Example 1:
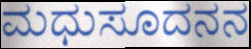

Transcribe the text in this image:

ಮಧುಸೂದನನ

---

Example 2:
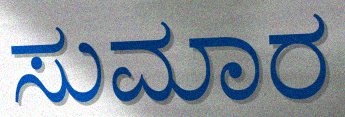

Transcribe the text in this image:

ಸುಮಾರ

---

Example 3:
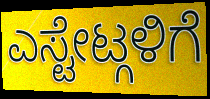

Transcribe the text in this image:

ಎಸ್ಟೇಟ್ಗಳಿಗೆ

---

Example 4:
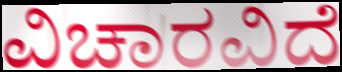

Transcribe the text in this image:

ವಿಚಾರವಿದೆ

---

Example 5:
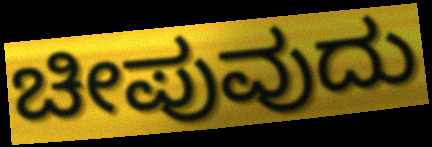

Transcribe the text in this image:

ಚೀಪುವುದು